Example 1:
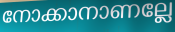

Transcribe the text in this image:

നോക്കാനാണല്ലേ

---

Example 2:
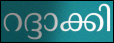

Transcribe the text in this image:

റദ്ദാക്കി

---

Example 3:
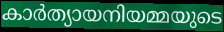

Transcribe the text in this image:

കാർത്യായനിയമ്മയുടെ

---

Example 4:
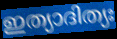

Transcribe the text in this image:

ഇത്യാദിത്യഃ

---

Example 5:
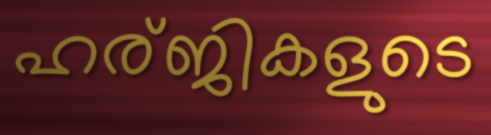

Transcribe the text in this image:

ഹര്ജികളുടെ